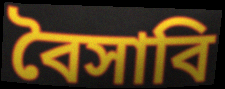
বৈসাবি